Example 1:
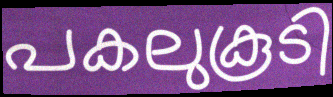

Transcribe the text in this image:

പകലുകൂടി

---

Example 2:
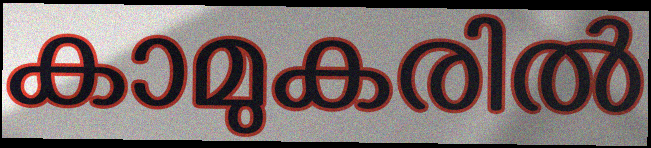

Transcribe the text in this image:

കാമുകരിൽ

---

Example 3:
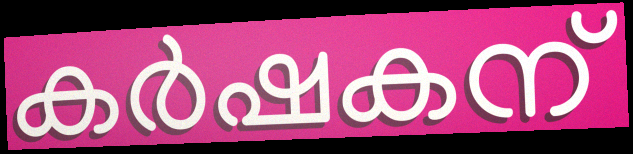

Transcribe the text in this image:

കർഷകന്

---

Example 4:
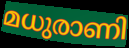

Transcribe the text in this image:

മധുരാണി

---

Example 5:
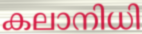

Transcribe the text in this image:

കലാനിധി